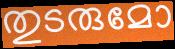
തുടരുമോ